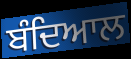
ਬੰਦਿਆਲ